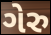
ગેરુ